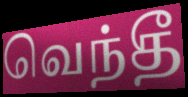
வெந்தீ